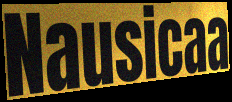
Nausicaa